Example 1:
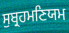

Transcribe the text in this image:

ਸੁਬ੍ਰਹਮਣਿਯਮ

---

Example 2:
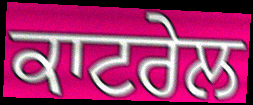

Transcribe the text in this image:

ਕਾਟਰੇਲ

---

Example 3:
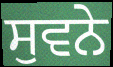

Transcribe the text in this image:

ਸੁਵਨੇ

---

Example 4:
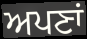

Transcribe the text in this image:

ਅਪਣਾਂ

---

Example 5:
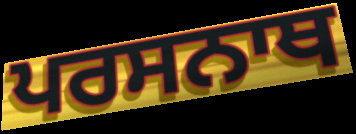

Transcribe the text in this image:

ਪਰਸਨਾਥ